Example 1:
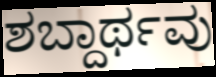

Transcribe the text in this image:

ಶಬ್ದಾರ್ಥವು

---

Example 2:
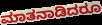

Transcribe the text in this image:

ಮಾತನಾಡಿದರೂ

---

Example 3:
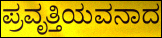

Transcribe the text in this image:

ಪ್ರವೃತ್ತಿಯವನಾದ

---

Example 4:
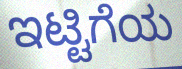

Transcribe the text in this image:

ಇಟ್ಟಿಗೆಯ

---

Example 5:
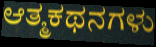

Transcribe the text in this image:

ಆತ್ಮಕಥನಗಳು